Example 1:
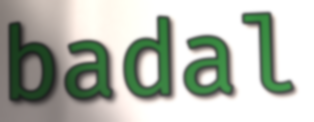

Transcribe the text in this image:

badal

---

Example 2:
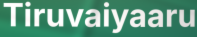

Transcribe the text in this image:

Tiruvaiyaaru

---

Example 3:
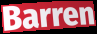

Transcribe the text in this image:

Barren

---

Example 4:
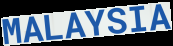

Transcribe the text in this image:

MALAYSIA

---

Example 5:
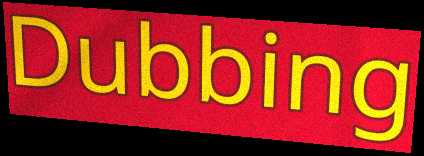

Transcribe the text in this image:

Dubbing